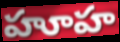
హూహ